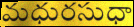
మధురసుధా